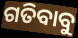
ଗତିବାବୁ